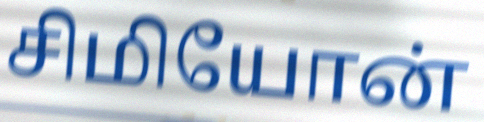
சிமியோன்